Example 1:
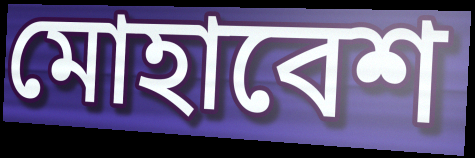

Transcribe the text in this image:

মোহাবেশ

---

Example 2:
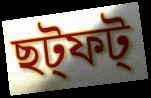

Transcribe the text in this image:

ছট্ফট্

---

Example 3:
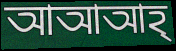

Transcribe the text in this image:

আআআহ্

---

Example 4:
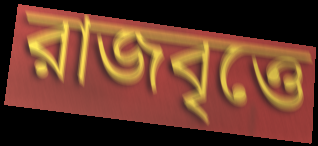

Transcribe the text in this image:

রাজবৃত্তে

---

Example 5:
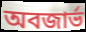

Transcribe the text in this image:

অবজার্ভ